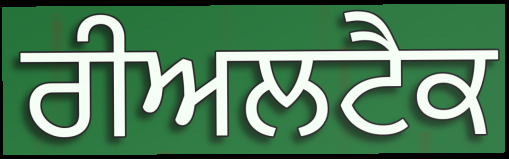
ਰੀਅਲਟੈਕ